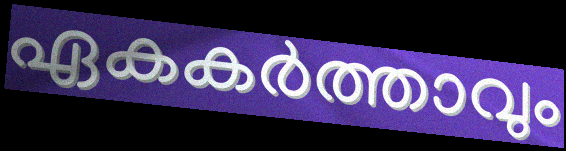
ഏകകർത്താവും